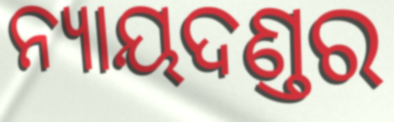
ନ୍ୟାୟଦଣ୍ଡର